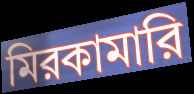
মিরকামারি